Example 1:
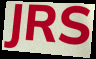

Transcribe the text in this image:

JRS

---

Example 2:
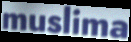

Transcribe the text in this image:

muslima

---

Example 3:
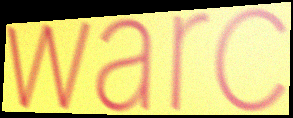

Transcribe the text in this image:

warc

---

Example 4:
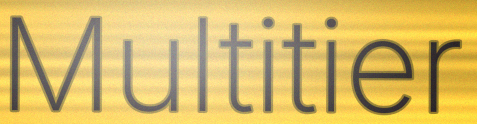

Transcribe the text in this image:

Multitier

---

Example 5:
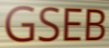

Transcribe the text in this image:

GSEB